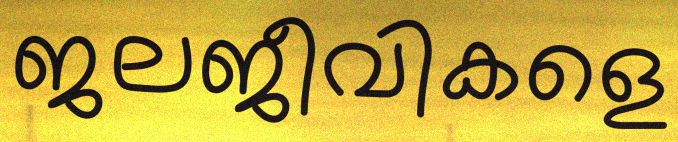
ജലജീവികളെ